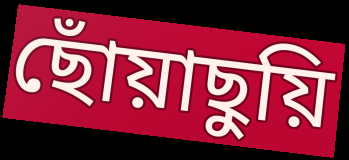
ছোঁয়াছুয়ি